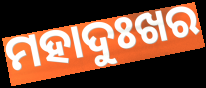
ମହାଦୁଃଖର